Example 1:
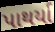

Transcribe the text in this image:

પાથર્યા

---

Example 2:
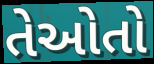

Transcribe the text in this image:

તેઓતો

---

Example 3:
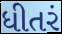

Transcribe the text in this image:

ધીતરં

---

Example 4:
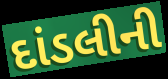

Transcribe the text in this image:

દાંડલીની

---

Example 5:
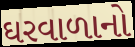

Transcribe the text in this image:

ઘરવાળાનો